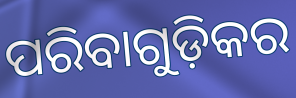
ପରିବାଗୁଡ଼ିକର